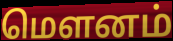
மெளனம்